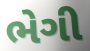
ભેગી